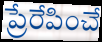
ప్రేరేపించే